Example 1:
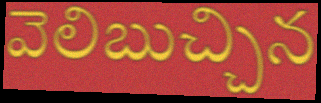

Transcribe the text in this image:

వెలిబుచ్చిన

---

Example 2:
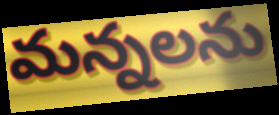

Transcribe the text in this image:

మన్నలను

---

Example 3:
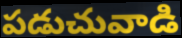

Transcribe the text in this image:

పడుచువాడి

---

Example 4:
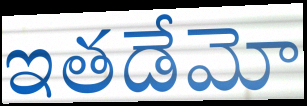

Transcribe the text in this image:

ఇతడేమో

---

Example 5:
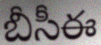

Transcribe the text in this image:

బీసీఈ